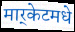
मार्केटमधे